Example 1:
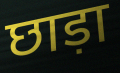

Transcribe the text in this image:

छाड़ा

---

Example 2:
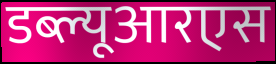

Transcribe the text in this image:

डब्ल्यूआरएस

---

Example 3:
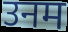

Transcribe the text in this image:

उनम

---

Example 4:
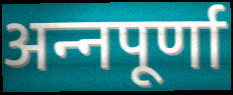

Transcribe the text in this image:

अन्नपूर्णा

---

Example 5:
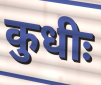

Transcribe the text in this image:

कुधीः